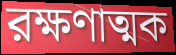
রক্ষণাত্মক